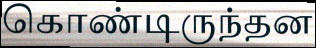
கொண்டிருந்தன